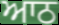
ਆਠ